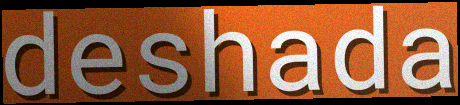
deshada